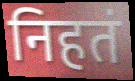
निहतं